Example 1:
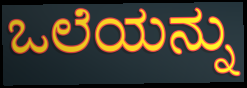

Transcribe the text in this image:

ಒಲೆಯನ್ನು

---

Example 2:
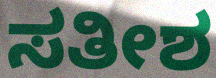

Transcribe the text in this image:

ಸತೀಶ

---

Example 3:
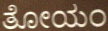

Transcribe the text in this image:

ತೋಯಂ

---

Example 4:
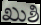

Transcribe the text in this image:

ಖುಶಿ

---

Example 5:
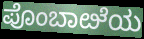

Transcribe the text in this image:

ಪೊಂಬಾೞೆಯ